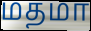
மதமா